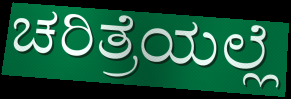
ಚರಿತ್ರೆಯಲ್ಲೆ